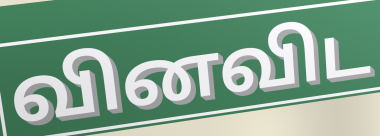
வினவிட